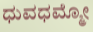
ಧುವಧಮ್ಮೋ